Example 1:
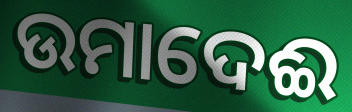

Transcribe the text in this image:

ଉମାଦେଈ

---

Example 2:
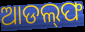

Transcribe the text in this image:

ଆଡଲ୍‌ଫ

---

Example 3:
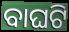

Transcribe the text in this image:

ବାଘଟି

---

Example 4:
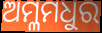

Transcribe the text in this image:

ଅମ୍ଳମଧୁର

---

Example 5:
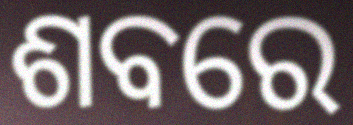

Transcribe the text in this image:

ଶବରେ